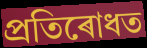
প্ৰতিৰোধত